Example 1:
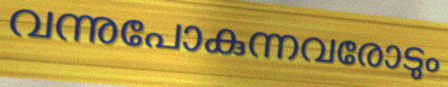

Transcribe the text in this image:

വന്നുപോകുന്നവരോടും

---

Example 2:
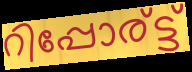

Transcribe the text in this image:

റിപ്പോര്ട്ട്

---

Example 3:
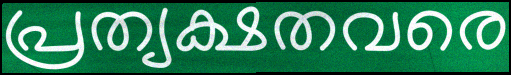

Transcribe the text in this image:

പ്രത്യക്ഷതവരെ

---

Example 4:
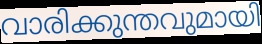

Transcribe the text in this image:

വാരിക്കുന്തവുമായി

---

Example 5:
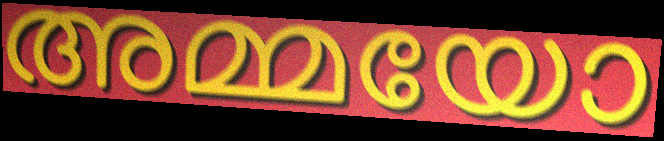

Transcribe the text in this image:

അമ്മയോ